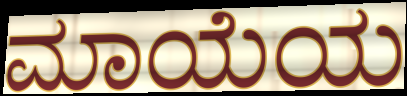
ಮಾಯೆಯ